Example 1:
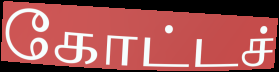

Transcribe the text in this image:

கோட்டச்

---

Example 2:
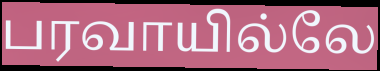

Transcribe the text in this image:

பரவாயில்லே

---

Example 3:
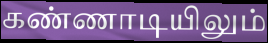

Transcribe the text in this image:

கண்ணாடியிலும்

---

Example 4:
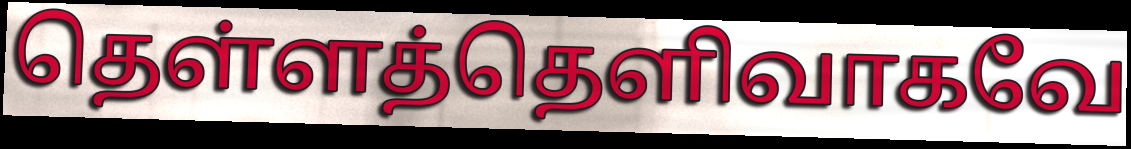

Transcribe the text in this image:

தெள்ளத்தெளிவாகவே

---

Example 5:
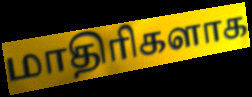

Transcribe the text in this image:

மாதிரிகளாக